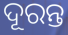
ଦୂରନ୍ତ